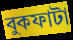
বুকফাটা